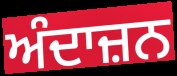
ਅੰਦਾਜ਼ਨ